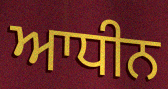
ਆਧੀਨ